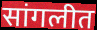
सांगलीत